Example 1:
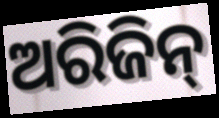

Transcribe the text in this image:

ଅରିଜିନ୍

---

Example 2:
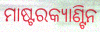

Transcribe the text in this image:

ମାଷ୍ଟରକ୍ୟାଣ୍ଟିନ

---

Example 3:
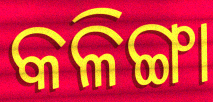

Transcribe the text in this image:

କଳିଙ୍ଗା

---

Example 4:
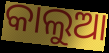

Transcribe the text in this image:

କାଲୁଆ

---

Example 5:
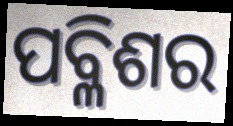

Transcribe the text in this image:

ପବ୍ଳିଶର